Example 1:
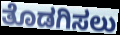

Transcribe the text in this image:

ತೊಡಗಿಸಲು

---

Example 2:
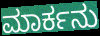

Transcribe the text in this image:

ಮಾರ್ಕನು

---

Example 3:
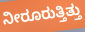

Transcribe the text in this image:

ನೀರೂರುತ್ತಿತ್ತು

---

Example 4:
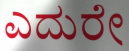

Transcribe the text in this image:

ಎದುರೇ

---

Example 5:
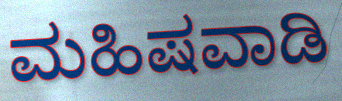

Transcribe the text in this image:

ಮಹಿಷವಾಡಿ